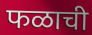
फळाची